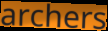
archers